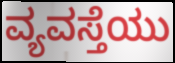
ವ್ಯವಸ್ತೆಯು